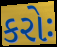
કરોઃ